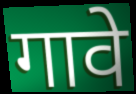
गावे